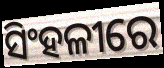
ସିଂହଳୀରେ